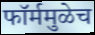
फॉर्ममुळेच